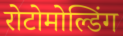
रोटोमोल्डिंग